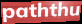
paththu